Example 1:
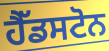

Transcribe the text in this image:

ਹੈੱਡਸਟੋਨ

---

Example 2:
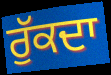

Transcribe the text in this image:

ਰੁੱਕਦਾ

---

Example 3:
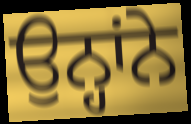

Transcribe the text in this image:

ਉਨ੍ਹਾਂਨੇ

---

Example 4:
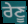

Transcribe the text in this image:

ਰੇਣੂ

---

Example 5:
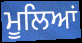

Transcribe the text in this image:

ਮੂਲਿਆਂ